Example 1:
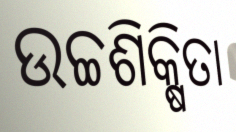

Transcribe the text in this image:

ଉଚ୍ଚଶିକ୍ଷିତା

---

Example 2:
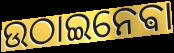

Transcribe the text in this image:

ଉଠାଇନେଵା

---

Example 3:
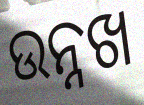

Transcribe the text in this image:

ଉନ୍ନଖ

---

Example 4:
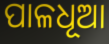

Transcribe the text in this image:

ପାଳଧୂଆ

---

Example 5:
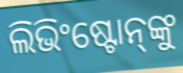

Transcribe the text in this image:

ଲିଭିଂଷ୍ଟୋନ୍‌ଙ୍କୁ